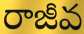
రాజీవ